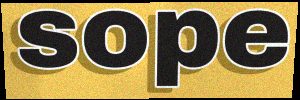
sope